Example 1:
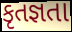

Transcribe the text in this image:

કૃતજ્ઞતા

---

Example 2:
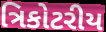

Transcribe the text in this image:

ત્રિકોટરીય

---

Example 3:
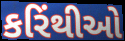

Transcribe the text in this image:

કરિંથીઓ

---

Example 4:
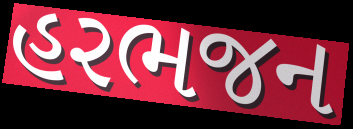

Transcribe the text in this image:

હરભજન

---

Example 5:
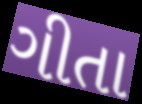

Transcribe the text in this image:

ગીતા